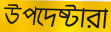
উপদেষ্টারা